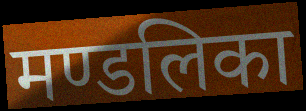
मण्डलिका